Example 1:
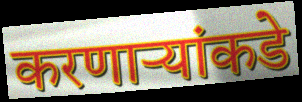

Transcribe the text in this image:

करणाऱ्यांकडे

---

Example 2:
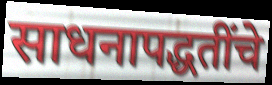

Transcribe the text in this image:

साधनापद्धतींचे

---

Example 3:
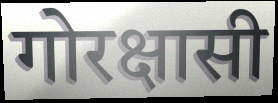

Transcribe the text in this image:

गोरक्षासी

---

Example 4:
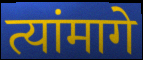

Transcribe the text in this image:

त्यांमागे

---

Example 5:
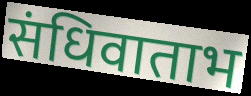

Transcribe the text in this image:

संधिवाताभ